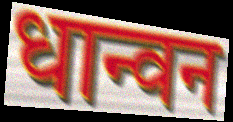
धान्वन